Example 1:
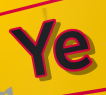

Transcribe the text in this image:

Ye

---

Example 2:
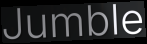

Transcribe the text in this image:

Jumble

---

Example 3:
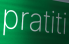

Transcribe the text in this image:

pratiti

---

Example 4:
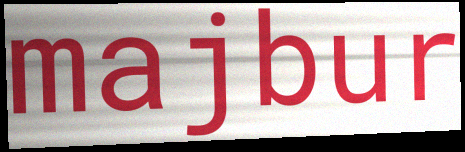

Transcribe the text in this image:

majbur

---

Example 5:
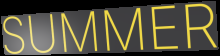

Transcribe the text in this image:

SUMMER